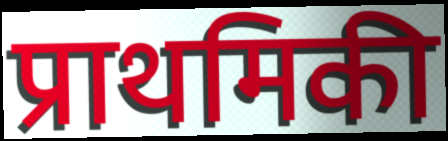
प्राथमिकी